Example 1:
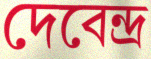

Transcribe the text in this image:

দেবেন্দ্র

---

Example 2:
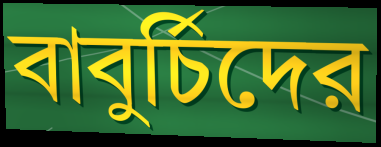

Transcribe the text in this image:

বাবুর্চিদের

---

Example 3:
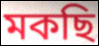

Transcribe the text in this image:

মকছি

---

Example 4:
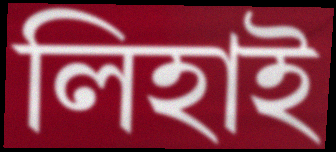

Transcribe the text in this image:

লিহাই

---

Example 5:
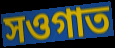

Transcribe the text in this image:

সওগাত